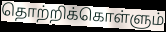
தொற்றிக்கொள்ளும்